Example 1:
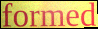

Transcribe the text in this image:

formed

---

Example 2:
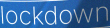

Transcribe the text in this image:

lockdown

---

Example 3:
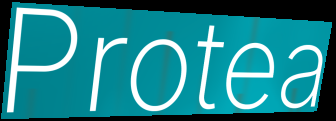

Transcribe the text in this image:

Protea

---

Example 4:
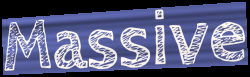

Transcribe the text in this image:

Massive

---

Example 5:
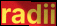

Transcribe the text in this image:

radii